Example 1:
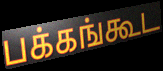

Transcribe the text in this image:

பக்கங்கூட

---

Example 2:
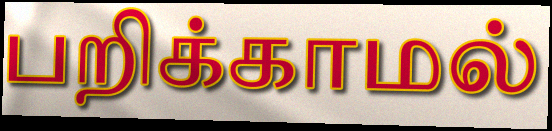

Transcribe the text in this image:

பறிக்காமல்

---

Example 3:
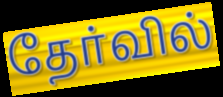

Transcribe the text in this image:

தேர்வில்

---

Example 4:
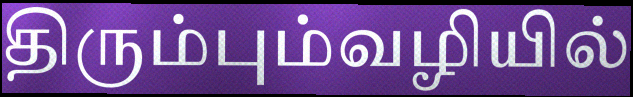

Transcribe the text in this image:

திரும்பும்வழியில்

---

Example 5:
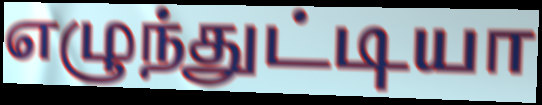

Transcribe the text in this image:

எழுந்துட்டியா